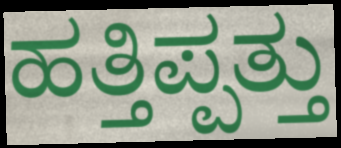
ಹತ್ತಿಪ್ಪತ್ತು